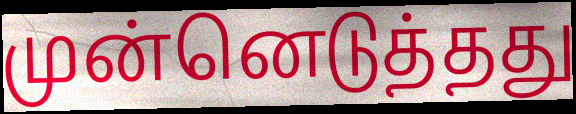
முன்னெடுத்தது